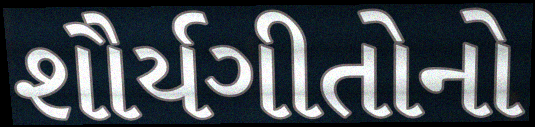
શૌર્યગીતોનો